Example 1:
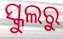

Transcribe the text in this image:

ସ୍କୁଲରୁ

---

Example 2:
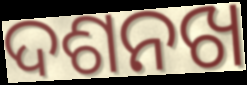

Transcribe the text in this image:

ଦଶନଖ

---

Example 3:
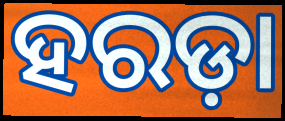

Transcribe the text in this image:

ହରଡ଼ା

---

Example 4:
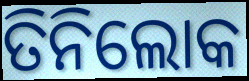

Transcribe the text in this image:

ତିନିଲୋକ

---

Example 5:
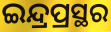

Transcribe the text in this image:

ଇନ୍ଦ୍ରପ୍ରସ୍ଥର